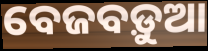
ବେଜବଡ଼ୁଆ